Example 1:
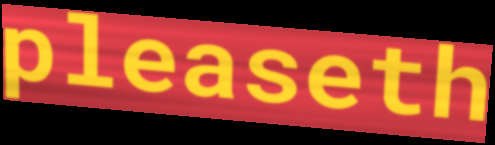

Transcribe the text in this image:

pleaseth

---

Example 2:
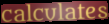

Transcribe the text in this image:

calculates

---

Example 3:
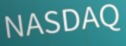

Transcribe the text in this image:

NASDAQ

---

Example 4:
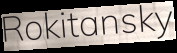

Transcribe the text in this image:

Rokitansky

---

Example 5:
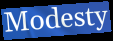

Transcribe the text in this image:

Modesty